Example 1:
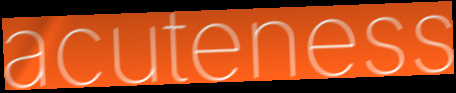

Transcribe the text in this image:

acuteness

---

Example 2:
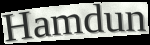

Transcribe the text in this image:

Hamdun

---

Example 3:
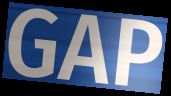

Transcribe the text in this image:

GAP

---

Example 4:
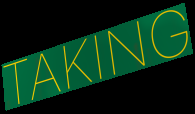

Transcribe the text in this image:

TAKING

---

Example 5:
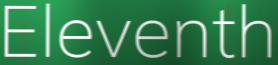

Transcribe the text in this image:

Eleventh